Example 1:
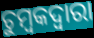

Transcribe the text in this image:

ଚୁମ୍ବକଦ୍ବାରା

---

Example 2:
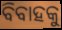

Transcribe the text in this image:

ବିବାହକୁ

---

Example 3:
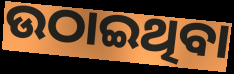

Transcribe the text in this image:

ଉଠାଇଥିବା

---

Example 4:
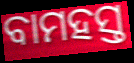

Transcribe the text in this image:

ବାମହସ୍ତ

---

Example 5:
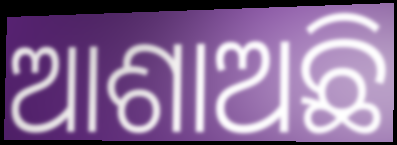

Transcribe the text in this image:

ଆଶାଅଛି